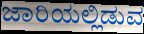
ಜಾರಿಯಲ್ಲಿಡುವ